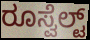
ರೂಸ್ವೆಲ್ಟ್